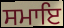
ਸਮਾਇ